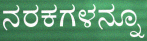
ನರಕಗಳನ್ನೂ